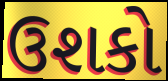
ઉશકો